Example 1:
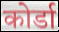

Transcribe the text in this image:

कोर्डा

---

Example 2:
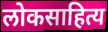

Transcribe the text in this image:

लोकसाहित्य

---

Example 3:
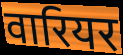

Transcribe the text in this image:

वारियर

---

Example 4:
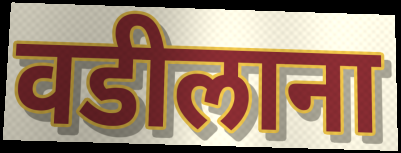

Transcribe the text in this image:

वडीलाना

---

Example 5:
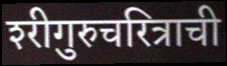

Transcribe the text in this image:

श्रीगुरुचरित्राची